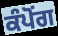
ਕੰਪੋਂਗ